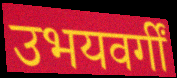
उभयवर्गीं